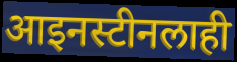
आइनस्टीनलाही